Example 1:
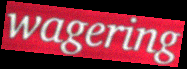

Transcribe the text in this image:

wagering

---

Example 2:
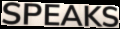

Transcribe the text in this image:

SPEAKS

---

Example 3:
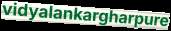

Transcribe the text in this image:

vidyalankargharpure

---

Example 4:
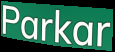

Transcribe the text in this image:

Parkar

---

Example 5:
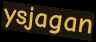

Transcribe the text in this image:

ysjagan